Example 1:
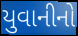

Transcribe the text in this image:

યુવાનીનો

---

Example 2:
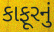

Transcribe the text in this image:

કાફૂરનું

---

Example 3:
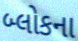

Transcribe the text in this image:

બ્લોકના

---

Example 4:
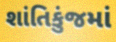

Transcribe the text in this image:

શાંતિકુંજમાં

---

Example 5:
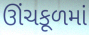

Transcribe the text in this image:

ઊંચકૂળમાં